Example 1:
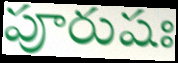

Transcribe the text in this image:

పూరుషః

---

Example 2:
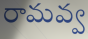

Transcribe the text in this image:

రామవ్వ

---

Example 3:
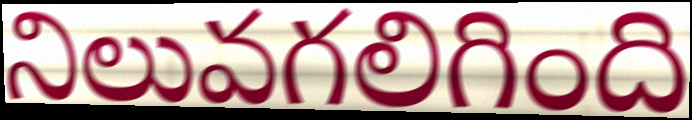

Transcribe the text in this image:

నిలువగలిగింది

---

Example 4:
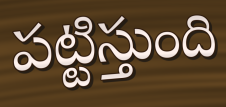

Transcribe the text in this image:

పట్టిస్తుంది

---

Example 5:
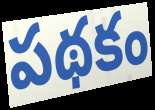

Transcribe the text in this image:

పథకం